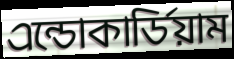
এন্ডোকার্ডিয়াম